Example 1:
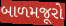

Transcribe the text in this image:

બાળમજૂરો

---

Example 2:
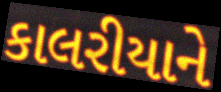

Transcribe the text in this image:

કાલરીયાને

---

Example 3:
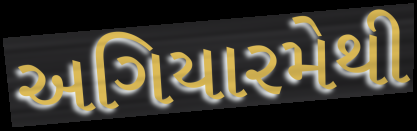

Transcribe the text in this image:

અગિયારમેથી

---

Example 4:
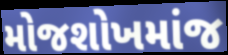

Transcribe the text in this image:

મોજશોખમાંજ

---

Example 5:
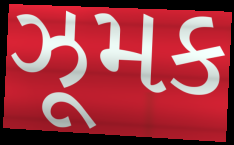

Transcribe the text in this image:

ઝૂમક